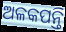
ଅଳକପନ୍ତି